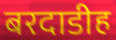
बरदाडीह